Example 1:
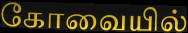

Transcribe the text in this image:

கோவையில்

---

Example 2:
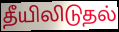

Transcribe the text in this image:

தீயிலிடுதல்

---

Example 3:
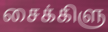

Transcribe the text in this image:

சைக்கிளு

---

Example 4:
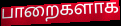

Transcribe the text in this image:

பாறைகளாக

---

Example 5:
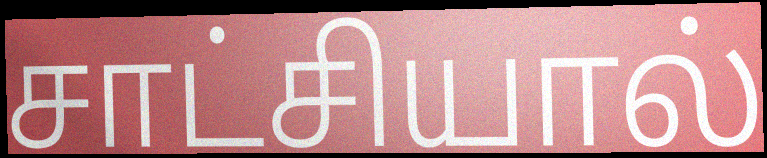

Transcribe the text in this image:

சாட்சியால்